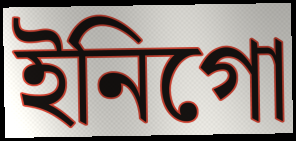
ইনিগো